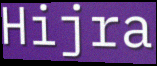
Hijra